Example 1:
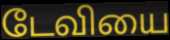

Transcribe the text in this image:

டேவியை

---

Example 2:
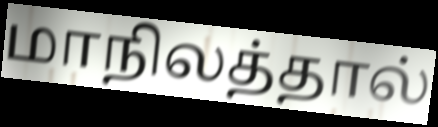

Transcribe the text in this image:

மாநிலத்தால்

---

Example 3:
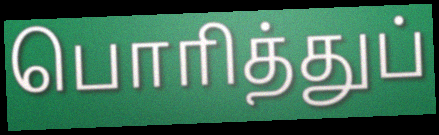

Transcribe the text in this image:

பொரித்துப்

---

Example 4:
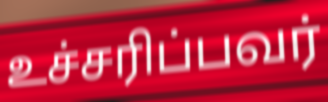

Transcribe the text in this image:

உச்சரிப்பவர்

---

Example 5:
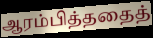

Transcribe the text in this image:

ஆரம்பித்ததைத்